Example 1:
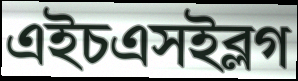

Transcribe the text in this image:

এইচএসইব্লগ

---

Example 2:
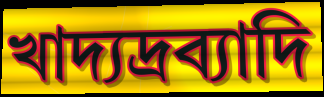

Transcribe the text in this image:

খাদ্যদ্রব্যাদি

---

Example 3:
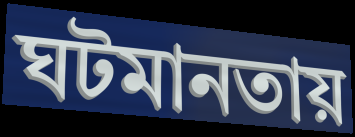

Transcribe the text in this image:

ঘটমানতায়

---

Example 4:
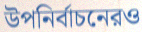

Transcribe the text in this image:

উপনির্বাচনেরও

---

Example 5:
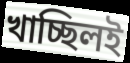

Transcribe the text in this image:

খাচ্ছিলই